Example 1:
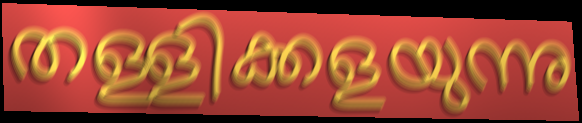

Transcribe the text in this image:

തള്ളിക്കളയുന്നു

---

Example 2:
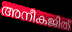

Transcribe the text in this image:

അനീകജിത്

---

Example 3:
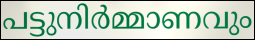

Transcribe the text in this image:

പട്ടുനിർമ്മാണവും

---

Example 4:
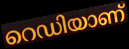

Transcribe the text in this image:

റെഡിയാണ്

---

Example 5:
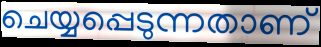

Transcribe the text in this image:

ചെയ്യപ്പെടുന്നതാണ്